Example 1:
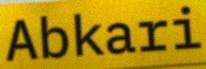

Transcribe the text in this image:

Abkari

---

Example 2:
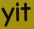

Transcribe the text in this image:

yit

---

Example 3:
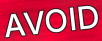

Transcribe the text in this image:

AVOID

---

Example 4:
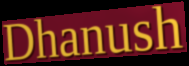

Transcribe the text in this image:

Dhanush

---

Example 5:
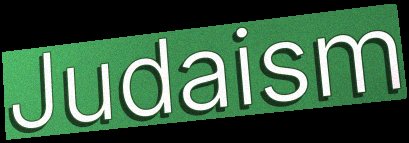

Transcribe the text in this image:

Judaism